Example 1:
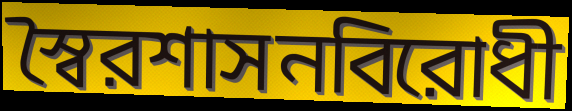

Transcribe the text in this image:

স্বৈরশাসনবিরোধী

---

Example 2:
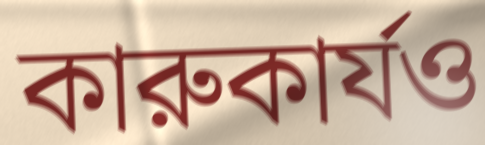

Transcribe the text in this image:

কারুকার্যও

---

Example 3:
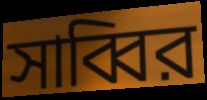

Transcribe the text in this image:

সাব্বির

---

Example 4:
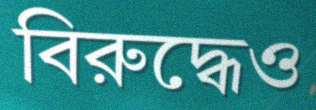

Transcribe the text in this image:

বিরুদ্ধেও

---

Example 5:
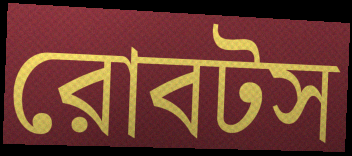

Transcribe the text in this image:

রোবটস